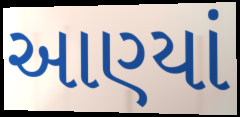
આણ્યાં